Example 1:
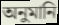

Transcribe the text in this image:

অনুমানি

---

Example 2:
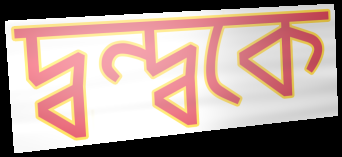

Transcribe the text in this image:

দ্বন্দ্বকে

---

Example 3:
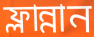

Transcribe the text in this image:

ফ্লান্নান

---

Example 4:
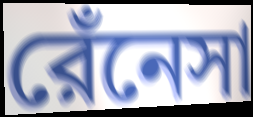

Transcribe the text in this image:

রেঁনেসা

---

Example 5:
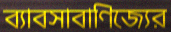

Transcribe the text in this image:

ব্যাবসাবাণিজ্যের